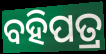
ବହିପତ୍ର